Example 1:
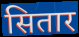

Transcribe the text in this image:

सितार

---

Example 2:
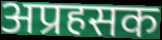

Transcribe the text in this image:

अप्रहसक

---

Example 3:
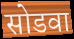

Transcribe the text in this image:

सोडवा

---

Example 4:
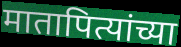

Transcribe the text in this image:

मातापित्यांच्या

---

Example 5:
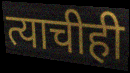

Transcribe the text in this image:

त्याचीही